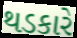
થડકારે